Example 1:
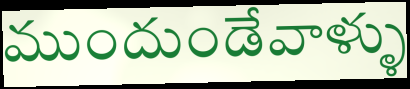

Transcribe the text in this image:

ముందుండేవాళ్ళు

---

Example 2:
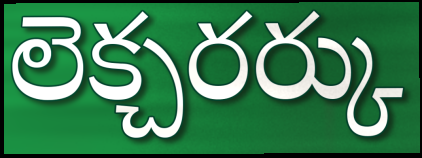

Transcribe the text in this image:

లెక్చరర్కు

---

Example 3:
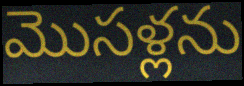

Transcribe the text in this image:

మొసళ్లను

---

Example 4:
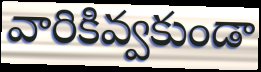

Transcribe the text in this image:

వారికివ్వకుండా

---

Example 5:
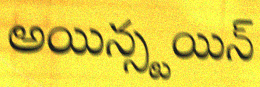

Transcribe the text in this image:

అయిన్స్టయిన్